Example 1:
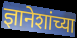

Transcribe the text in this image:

ज्ञानेशांच्या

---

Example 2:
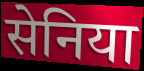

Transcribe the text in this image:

सेनिया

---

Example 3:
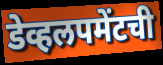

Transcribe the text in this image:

डेव्हलपमेंटची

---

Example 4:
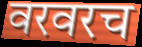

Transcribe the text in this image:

वरवरच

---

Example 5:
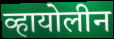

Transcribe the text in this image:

व्हायोलीन